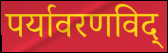
पर्यावरणविद्